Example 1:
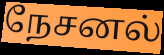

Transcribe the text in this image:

நேசனல்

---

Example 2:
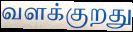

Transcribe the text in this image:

வளக்குறது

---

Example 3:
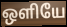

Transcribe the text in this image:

ஒளியே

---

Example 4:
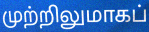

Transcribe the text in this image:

முற்றிலுமாகப்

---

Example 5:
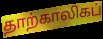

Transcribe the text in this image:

தாற்காலிகப்